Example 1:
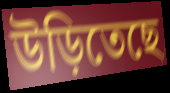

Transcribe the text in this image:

উড়িতেছে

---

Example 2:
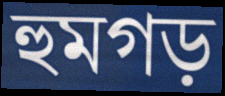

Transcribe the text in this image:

হুমগড়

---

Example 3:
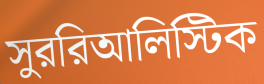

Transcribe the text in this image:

সুররিআলিস্টিক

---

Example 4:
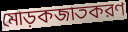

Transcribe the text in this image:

মোড়কজাতকরণ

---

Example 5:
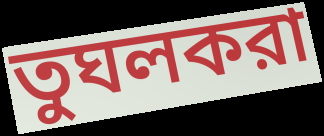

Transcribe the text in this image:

তুঘলকরা